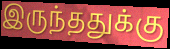
இருந்ததுக்கு